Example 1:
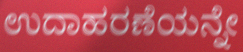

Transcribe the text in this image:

ಉದಾಹರಣೆಯನ್ನೇ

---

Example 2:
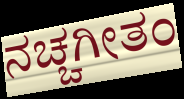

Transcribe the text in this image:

ನಚ್ಚಗೀತಂ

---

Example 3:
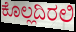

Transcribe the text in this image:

ಕೊಲ್ಲದಿರಲಿ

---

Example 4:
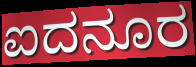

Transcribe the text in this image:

ಐದನೂರ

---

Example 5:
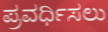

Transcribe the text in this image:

ಪ್ರವರ್ಧಿಸಲು